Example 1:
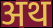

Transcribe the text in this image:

अथ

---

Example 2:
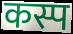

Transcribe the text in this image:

कस्प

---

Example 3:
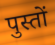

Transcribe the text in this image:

पुस्तों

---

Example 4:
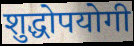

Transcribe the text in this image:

शुद्धोपयोगी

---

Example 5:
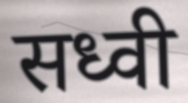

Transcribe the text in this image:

सध्वी